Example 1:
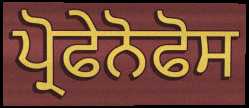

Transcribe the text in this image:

ਪ੍ਰੋਫੇਨੋਫੋਸ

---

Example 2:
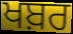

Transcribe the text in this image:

ਖਬ਼ਰ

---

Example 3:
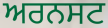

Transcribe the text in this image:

ਅਰਨਸਟ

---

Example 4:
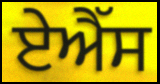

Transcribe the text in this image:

ਏਐੱਸ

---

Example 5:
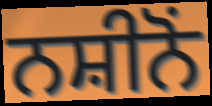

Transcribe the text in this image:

ਨਸ਼ੀਨੋਂ